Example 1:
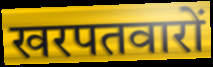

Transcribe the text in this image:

खरपतवारों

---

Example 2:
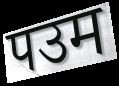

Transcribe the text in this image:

पउम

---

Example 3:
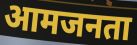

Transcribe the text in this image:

आमजनता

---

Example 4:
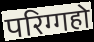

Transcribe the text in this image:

परिग्गहो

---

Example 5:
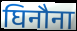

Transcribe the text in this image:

घिनौना